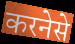
करनेसे